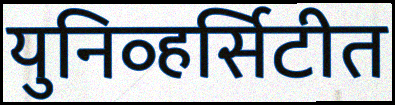
युनिव्हर्सिटीत